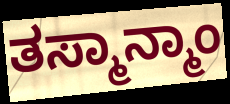
ತಸ್ಮಾನ್ಮಾಂ